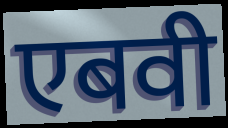
एबवी